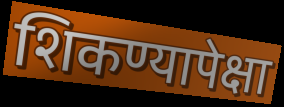
शिकण्यापेक्षा